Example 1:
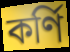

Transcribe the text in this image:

কর্ণি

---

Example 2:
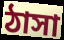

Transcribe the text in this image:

ঠাসা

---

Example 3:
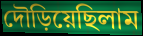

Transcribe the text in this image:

দৌড়িয়েছিলাম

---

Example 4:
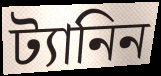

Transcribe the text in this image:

ট্যানিন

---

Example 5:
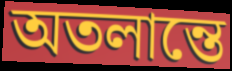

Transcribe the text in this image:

অতলান্তে